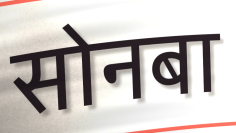
सोनबा